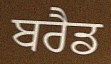
ਬਰੈਡ